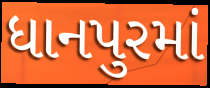
ધાનપુરમાં